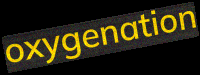
oxygenation